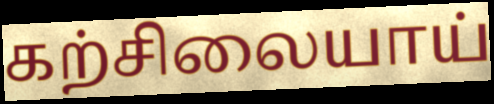
கற்சிலையாய்